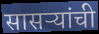
सासऱ्यांची